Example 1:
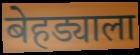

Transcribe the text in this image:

बेहड्याला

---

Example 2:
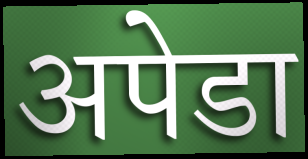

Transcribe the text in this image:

अपेडा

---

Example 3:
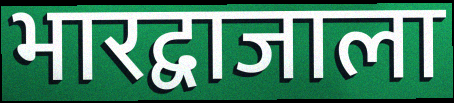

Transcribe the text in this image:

भारद्वाजाला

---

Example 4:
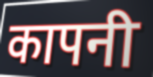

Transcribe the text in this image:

कापनी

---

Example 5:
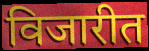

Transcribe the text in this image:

विजारीत